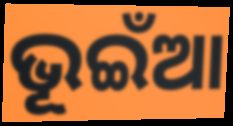
ଭୂଇଁଆ